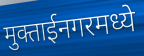
मुक्ताईनगरमध्ये